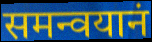
समन्वयानं